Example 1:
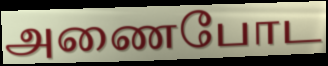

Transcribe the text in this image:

அணைபோட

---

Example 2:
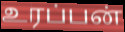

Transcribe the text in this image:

உரப்பன்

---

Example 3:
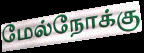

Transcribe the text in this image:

மேல்நோக்கு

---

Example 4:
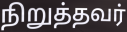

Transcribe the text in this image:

நிறுத்தவர்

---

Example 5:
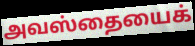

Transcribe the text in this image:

அவஸ்தையைக்